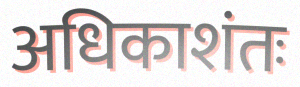
अधिकाशंतः